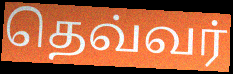
தெவ்வர்